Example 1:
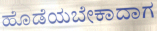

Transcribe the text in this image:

ಹೊಡೆಯಬೇಕಾದಾಗ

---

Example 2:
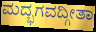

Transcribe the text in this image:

ಮದ್ಭಗವದ್ಗೀತಾ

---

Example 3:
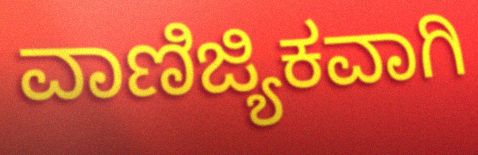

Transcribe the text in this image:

ವಾಣಿಜ್ಯಿಕವಾಗಿ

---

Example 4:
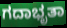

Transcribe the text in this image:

ಗದಾಭೃತಾ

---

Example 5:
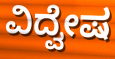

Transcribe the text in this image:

ವಿದ್ವೇಷ